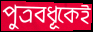
পুত্রবধূকেই